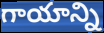
గాయాన్ని